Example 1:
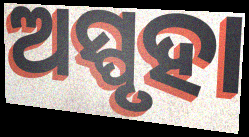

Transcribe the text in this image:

ଅସ୍ପୃହା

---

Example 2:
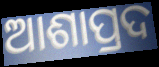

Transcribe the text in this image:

ଆଶାପ୍ରଦ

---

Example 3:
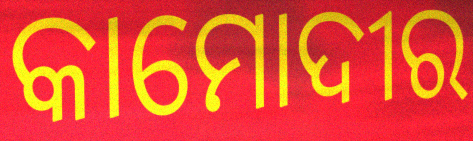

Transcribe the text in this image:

କାମୋଦୀର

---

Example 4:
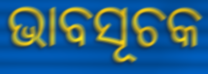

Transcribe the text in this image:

ଭାବସୂଚକ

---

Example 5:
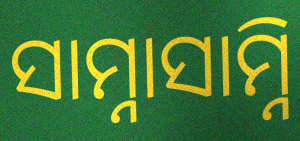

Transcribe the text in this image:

ସାମ୍ନାସାମ୍ନି